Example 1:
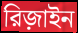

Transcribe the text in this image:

রিজ়াইন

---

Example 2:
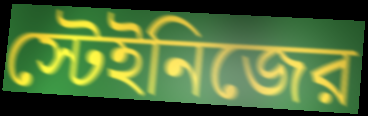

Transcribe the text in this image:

স্টেইনিজের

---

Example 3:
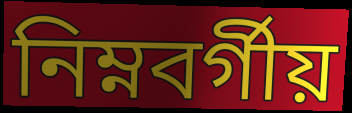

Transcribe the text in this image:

নিম্নবর্গীয়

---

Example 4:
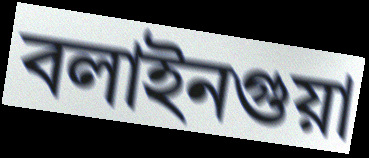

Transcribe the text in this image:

বলাইনগুয়া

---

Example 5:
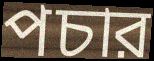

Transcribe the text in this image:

পচার